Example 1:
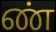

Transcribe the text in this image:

ண்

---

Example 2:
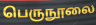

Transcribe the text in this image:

பெருநூலை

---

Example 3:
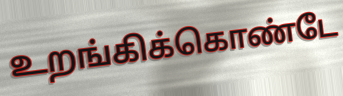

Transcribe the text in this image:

உறங்கிக்கொண்டே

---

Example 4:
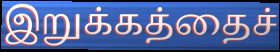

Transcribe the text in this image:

இறுக்கத்தைச்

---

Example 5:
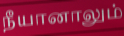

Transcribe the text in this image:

நீயானாலும்